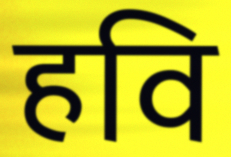
हवि